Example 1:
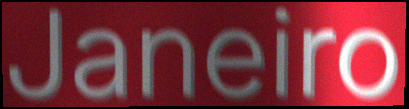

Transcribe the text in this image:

Janeiro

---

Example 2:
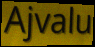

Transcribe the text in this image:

Ajvalu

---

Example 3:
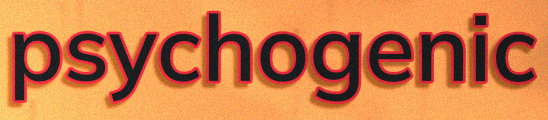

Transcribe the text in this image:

psychogenic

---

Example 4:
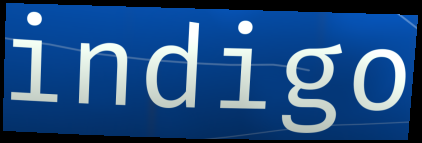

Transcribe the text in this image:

indigo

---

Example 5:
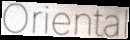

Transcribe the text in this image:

Oriental